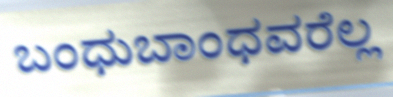
ಬಂಧುಬಾಂಧವರೆಲ್ಲ